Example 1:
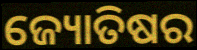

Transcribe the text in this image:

ଜ୍ୟୋତିଷର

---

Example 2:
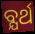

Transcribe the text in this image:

ବ୍ଯର୍ଥ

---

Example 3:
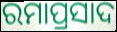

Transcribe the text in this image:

ରମାପ୍ରସାଦ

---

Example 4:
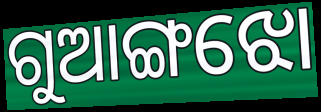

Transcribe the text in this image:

ଗୁଆଙ୍ଗଝୋ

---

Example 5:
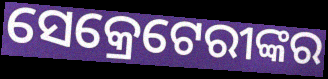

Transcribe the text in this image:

ସେକ୍ରେଟେରୀଙ୍କର